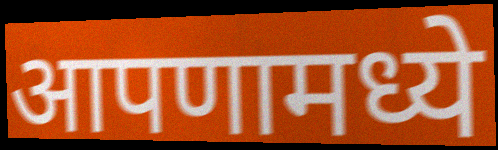
आपणामध्ये